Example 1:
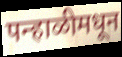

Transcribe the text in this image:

पन्हाळीमधून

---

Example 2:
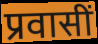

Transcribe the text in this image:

प्रवासीं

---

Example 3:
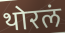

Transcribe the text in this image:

थोरलं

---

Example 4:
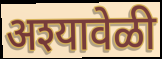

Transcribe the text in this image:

अश्यावेळी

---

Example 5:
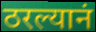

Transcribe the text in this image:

ठरल्यानं